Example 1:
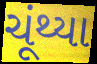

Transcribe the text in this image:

ચૂંથ્યા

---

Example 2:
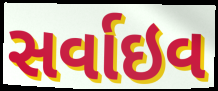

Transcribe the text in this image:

સર્વાઇવ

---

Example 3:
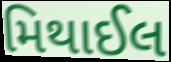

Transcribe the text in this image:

મિથાઈલ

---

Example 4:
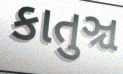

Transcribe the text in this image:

કાતુઞ્ચ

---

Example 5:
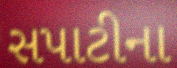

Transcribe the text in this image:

સપાટીના